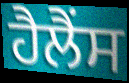
ਹੈਲੈਂਸ